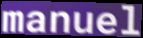
manuel